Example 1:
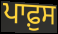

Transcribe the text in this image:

ਪਾਫ਼ੁਸ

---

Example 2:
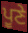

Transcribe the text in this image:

ਪੂਣੇ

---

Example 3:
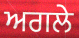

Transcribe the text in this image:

ਅਗਲੇ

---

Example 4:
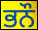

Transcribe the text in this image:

ਭਨੌ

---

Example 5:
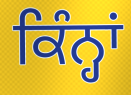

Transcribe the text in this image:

ਕਿੰਨ੍ਹਾਂ